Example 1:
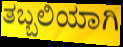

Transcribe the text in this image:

ತಬ್ಬಲಿಯಾಗಿ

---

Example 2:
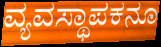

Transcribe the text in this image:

ವ್ಯವಸ್ಥಾಪಕನೂ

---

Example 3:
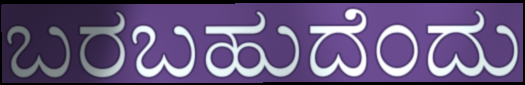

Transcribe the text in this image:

ಬರಬಹುದೆಂದು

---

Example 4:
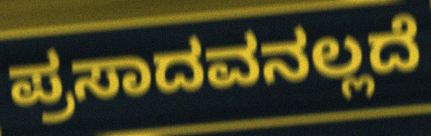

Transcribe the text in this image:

ಪ್ರಸಾದವನಲ್ಲದೆ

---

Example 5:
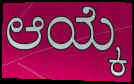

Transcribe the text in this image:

ಆಯ್ಕೆ